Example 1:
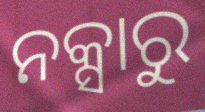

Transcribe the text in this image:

ନକ୍ସାରୁ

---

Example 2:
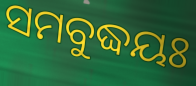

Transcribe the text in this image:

ସମବୁଦ୍ଧୟଃ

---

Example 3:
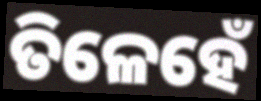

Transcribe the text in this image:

ତିଳେହେଁ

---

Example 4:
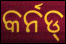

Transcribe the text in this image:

କର୍ନଡ୍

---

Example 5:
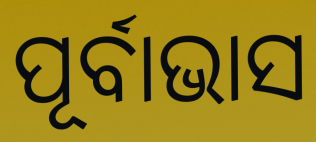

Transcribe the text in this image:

ପୂର୍ବାଭାସ